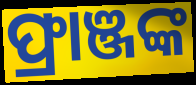
ଫ୍ରାଞ୍ଜଙ୍କ